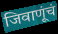
जिवाणूंचं